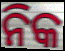
ନିକ